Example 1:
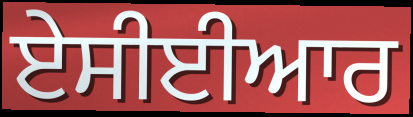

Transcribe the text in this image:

ਏਸੀਈਆਰ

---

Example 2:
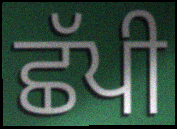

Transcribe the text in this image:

ਛੱਪੀ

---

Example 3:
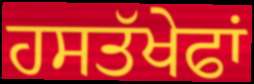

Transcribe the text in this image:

ਹਸਤੱਖੇਫਾਂ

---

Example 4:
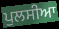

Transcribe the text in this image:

ਪੁਲਸੀਆ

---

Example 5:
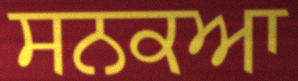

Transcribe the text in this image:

ਸਨਕਆ